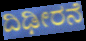
ದಿಢೀರನೆ